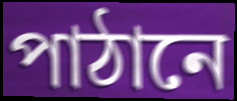
পাঠানে